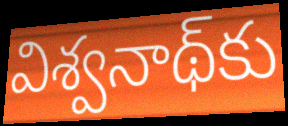
విశ్వనాథ్‌కు